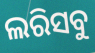
ଲରିସବୁ